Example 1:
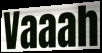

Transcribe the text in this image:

Vaaah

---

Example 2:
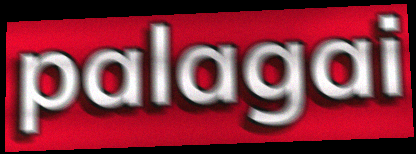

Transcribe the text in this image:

palagai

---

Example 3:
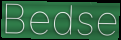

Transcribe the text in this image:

Bedse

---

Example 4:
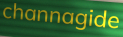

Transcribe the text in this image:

channagide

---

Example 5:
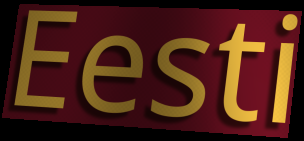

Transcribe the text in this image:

Eesti